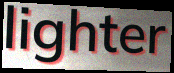
lighter